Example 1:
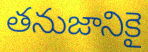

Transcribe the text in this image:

తనుజానికై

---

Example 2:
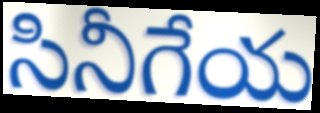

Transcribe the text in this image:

సినీగేయ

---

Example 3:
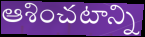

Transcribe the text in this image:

ఆశించటాన్ని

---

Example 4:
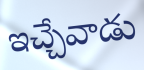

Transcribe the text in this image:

ఇచ్చేవాడు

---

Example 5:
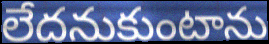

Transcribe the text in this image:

లేదనుకుంటాను